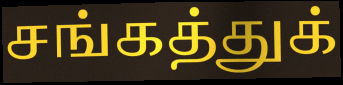
சங்கத்துக்